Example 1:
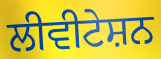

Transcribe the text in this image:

ਲੀਵੀਟੇਸ਼ਨ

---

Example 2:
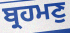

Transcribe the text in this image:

ਬ੍ਰਹਮਣੁ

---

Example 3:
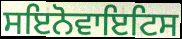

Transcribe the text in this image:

ਸਇਨੋਵਾਇਟਿਸ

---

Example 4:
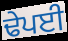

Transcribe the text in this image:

ਢੇਪਈ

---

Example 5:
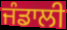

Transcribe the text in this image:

ਜੰਡਾਲੀ